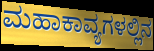
ಮಹಾಕಾವ್ಯಗಳಲ್ಲಿನ